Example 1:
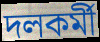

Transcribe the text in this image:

দলকর্মী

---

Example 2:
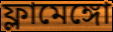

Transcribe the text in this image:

ফ্লামেঙ্গো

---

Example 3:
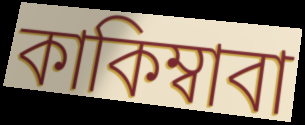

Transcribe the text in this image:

কাকিম্বাবা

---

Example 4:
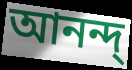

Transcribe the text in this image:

আনন্দ্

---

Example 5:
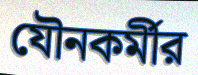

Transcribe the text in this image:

যৌনকর্মীর